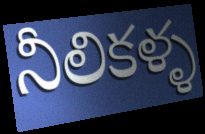
నీలికళ్ళ